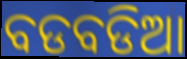
ବଡବଡିଆ